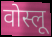
वोस्लू